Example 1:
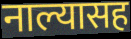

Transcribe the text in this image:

नाल्यासह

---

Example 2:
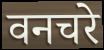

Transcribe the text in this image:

वनचरे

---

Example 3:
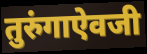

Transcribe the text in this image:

तुरुंगाऐवजी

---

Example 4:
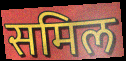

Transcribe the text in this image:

समिल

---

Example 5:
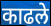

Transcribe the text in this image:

काढले